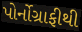
પોર્નોગ્રાફીથી